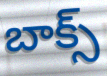
బాక్స్